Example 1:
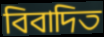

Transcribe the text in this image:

বিবাদিত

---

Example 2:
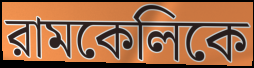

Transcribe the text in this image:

রামকেলিকে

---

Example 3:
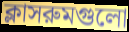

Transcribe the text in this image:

ক্লাসরুমগুলো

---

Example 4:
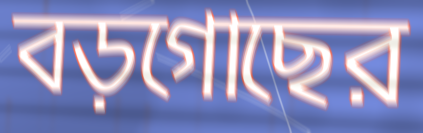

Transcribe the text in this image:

বড়গোছের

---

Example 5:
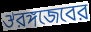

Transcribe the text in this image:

ঔরঙ্গজেবের